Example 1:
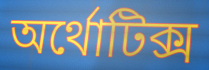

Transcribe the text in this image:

অর্থোটিক্স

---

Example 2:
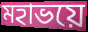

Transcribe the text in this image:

মহাভয়ে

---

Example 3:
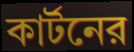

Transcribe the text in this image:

কার্টনের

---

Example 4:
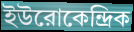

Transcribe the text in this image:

ইউরোকেন্দ্রিক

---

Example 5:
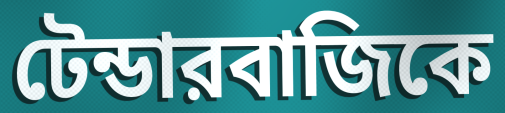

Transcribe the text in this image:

টেন্ডারবাজিকে